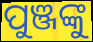
ପୁଞ୍ଜଙ୍କୁ